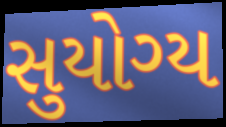
સુયોગ્ય